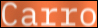
Carro